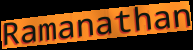
Ramanathan